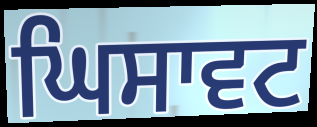
ਘਿਸਾਵਟ